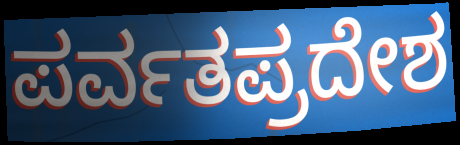
ಪರ್ವತಪ್ರದೇಶ